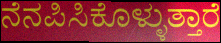
ನೆನಪಿಸಿಕೊಳ್ಳುತ್ತಾರೆ